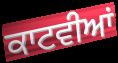
ਕਾਟਵੀਆਂ